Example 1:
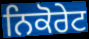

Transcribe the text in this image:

ਨਿਕੋਰੇਟ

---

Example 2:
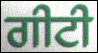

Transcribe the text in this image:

ਗੀਟੀ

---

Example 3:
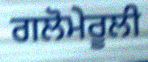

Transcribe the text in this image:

ਗਲੋਮੇਰੂਲੀ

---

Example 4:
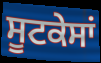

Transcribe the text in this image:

ਸੂਟਕੇਸਾਂ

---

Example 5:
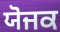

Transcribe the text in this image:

ਯੋਜਕ